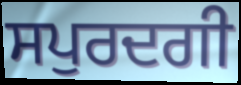
ਸਪੁਰਦਗੀ